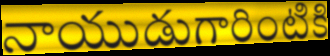
నాయుడుగారింటికి